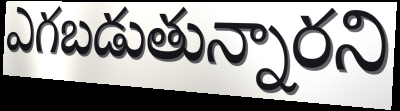
ఎగబడుతున్నారని